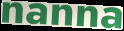
nanna